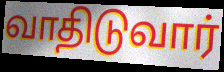
வாதிடுவார்